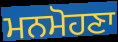
ਮਨਮੋਹਣਾ